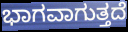
ಭಾಗವಾಗುತ್ತದೆ